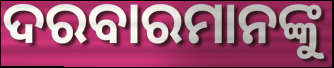
ଦରବାରମାନଙ୍କୁ